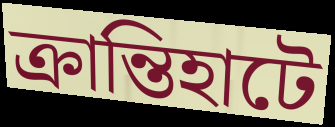
ক্রান্তিহাটে